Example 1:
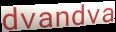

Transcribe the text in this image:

dvandva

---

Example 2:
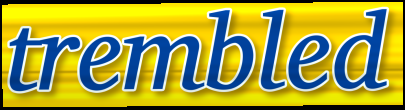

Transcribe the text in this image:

trembled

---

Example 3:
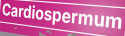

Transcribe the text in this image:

Cardiospermum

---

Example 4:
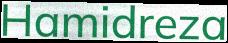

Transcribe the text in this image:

Hamidreza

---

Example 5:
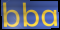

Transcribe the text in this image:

bba